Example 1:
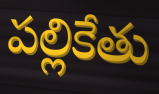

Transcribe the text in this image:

పల్లికేతు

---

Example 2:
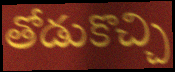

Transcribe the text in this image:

తోడుకొచ్చి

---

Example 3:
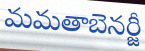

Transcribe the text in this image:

మమతాబెనర్జీ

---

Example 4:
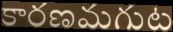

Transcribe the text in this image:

కారణమగుట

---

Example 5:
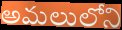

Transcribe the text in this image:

అమలులోని